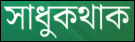
সাধুকথাক